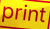
print